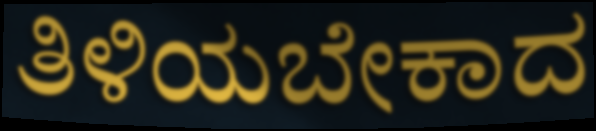
ತಿಳಿಯಬೇಕಾದ